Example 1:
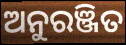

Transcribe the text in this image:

ଅନୁରଞ୍ଜିତ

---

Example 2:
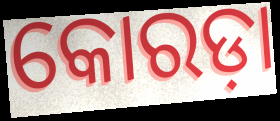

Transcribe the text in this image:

କୋରଡ଼ା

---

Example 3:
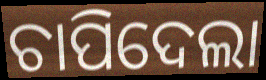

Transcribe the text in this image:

ଚାପିଦେଲା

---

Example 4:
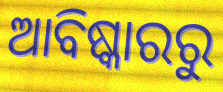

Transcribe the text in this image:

ଆବିଷ୍କାରରୁ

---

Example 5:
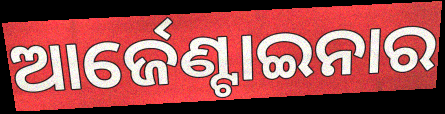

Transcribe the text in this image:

ଆର୍ଜେଣ୍ଟାଇନାର